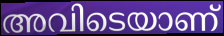
അവിടെയാണ്